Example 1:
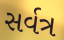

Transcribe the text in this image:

સર્વત્ર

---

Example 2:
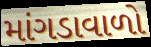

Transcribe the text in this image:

માંગડાવાળો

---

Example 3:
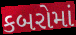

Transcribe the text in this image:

કબરોમાં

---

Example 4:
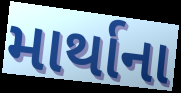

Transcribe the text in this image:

માર્થાના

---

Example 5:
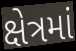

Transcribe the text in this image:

ક્ષેત્રમાં